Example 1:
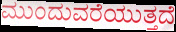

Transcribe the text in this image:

ಮುಂದುವರೆಯುತ್ತದೆ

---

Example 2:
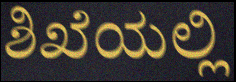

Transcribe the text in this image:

ಶಿಖೆಯಲ್ಲಿ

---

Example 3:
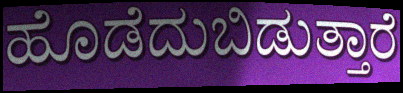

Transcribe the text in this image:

ಹೊಡೆದುಬಿಡುತ್ತಾರೆ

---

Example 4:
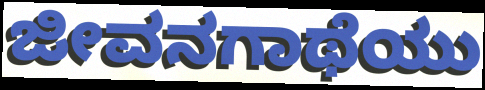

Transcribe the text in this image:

ಜೀವನಗಾಥೆಯು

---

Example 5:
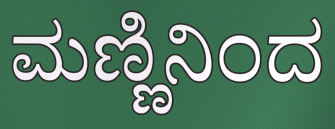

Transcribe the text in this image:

ಮಣ್ಣಿನಿಂದ